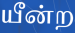
யீன்ற